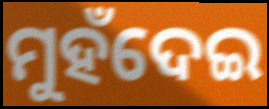
ମୁହଁଦେଇ